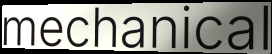
mechanical